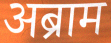
अब्राम